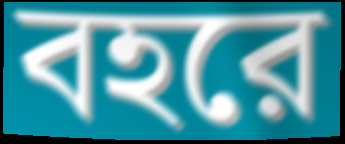
বহরে